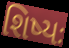
શિષ્યઃ